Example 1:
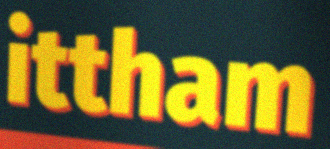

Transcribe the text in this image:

ittham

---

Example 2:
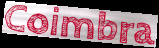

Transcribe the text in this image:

Coimbra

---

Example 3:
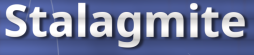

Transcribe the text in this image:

Stalagmite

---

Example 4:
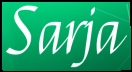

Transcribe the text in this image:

Sarja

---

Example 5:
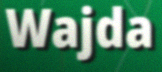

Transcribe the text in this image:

Wajda